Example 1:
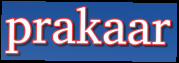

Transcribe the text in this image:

prakaar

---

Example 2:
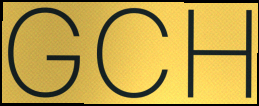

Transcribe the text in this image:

GCH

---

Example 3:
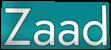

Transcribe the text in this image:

Zaad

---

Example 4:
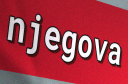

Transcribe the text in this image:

njegova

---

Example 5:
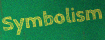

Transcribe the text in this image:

Symbolism